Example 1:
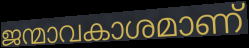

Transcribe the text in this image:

ജന്മാവകാശമാണ്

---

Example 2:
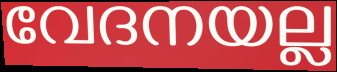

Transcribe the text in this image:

വേദനയല്ല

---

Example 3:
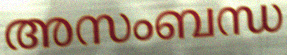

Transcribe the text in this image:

അസംബന്ധ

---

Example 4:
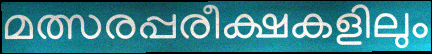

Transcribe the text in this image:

മത്സരപ്പരീക്ഷകളിലും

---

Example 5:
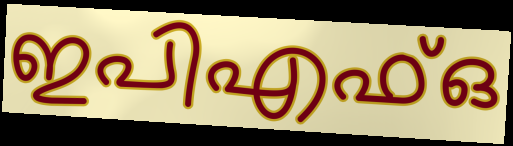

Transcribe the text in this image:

ഇപിഎഫ്ഒ